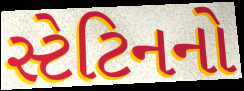
સ્ટેટિનનો